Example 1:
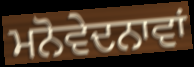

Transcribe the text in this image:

ਮਨੋਵੇਦਨਾਵਾਂ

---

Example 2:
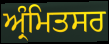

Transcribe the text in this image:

ਅ੍ਰੰਮਿਤਸਰ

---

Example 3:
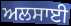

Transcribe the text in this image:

ਅਲਸਾਈ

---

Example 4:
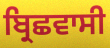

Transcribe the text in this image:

ਬ੍ਰਿਛਵਾਸੀ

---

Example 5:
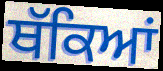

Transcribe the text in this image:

ਥੱਕਿਆਂ